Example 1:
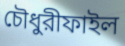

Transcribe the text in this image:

চৌধুরীফাইল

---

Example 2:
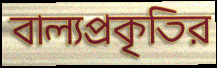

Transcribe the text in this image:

বাল্যপ্রকৃতির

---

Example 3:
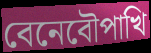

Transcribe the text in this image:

বেনেবৌপাখি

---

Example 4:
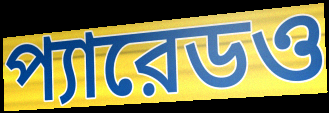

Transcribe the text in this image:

প্যারেডও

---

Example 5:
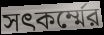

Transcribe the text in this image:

সৎকর্ম্মের